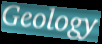
Geology